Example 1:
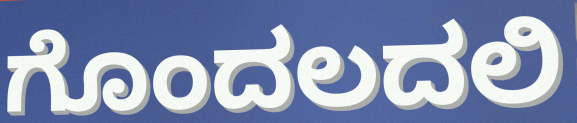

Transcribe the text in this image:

ಗೊಂದಲದಲಿ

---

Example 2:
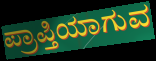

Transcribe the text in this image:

ಪ್ರಾಪ್ತಿಯಾಗುವ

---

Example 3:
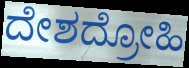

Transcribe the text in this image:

ದೇಶದ್ರೋಹಿ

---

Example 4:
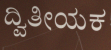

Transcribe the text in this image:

ದ್ವಿತೀಯಕ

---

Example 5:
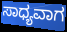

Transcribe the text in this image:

ಸಾಧ್ಯವಾಗ